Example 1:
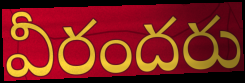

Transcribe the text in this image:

వీరందరు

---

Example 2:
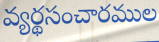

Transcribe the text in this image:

వ్యర్థసంచారముల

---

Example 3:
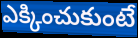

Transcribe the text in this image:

ఎక్కించుకుంటే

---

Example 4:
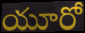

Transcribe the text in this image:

యూరో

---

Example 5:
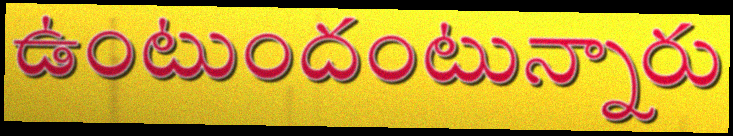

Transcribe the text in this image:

ఉంటుందంటున్నారు